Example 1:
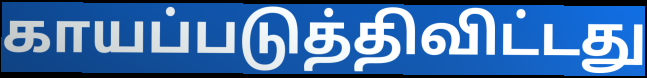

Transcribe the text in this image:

காயப்படுத்திவிட்டது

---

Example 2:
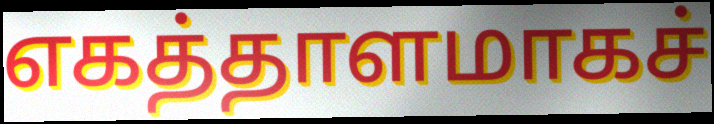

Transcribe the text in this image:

எகத்தாளமாகச்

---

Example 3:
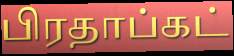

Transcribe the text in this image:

பிரதாப்கட்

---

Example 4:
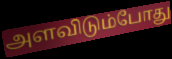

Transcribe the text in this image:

அளவிடும்போது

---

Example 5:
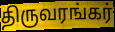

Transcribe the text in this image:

திருவரங்கர்